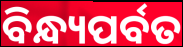
ବିନ୍ଧ୍ୟପର୍ବତ